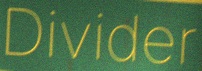
Divider